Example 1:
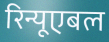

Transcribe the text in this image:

रिन्यूएबल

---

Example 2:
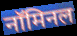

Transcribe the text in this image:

नॉमिनल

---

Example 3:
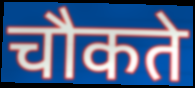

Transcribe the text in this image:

चौकते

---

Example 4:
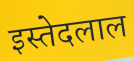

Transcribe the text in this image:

इस्तेदलाल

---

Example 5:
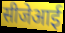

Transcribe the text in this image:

सीजेआई